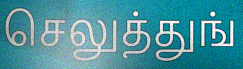
செலுத்துங்